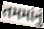
તમમાંનું